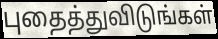
புதைத்துவிடுங்கள்